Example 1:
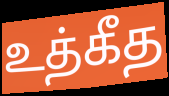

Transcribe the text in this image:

உத்கீத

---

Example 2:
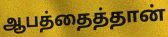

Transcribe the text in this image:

ஆபத்தைத்தான்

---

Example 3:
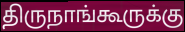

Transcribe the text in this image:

திருநாங்கூருக்கு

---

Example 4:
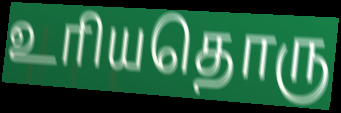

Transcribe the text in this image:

உரியதொரு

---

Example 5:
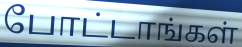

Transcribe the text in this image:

போட்டாங்கள்